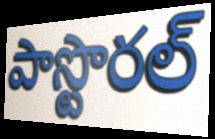
పాస్టొరల్